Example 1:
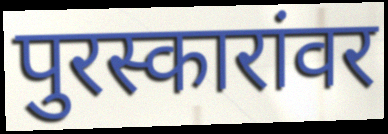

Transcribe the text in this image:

पुरस्कारांवर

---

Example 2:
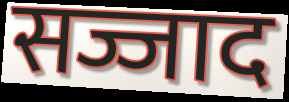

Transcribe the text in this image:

सज्जाद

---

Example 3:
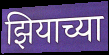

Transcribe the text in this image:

झियाच्या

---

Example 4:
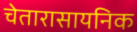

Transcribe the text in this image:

चेतारासायनिक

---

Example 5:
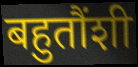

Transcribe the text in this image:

बहुतौंशी